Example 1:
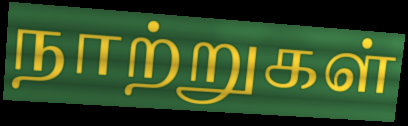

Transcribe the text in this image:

நாற்றுகள்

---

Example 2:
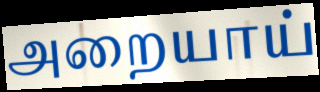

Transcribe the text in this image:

அறையாய்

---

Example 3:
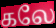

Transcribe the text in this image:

கலே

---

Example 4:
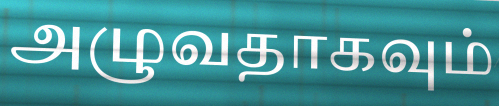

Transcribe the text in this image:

அழுவதாகவும்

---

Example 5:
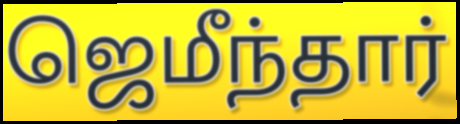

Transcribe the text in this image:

ஜெமீந்தார்